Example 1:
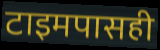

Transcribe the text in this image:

टाइमपासही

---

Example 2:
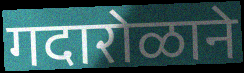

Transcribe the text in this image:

गदारोळाने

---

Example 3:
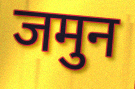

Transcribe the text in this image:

जमुन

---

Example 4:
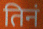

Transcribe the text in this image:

तिनं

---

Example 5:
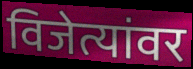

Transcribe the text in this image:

विजेत्यांवर